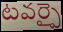
టవర్పై